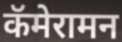
कॅमेरामन